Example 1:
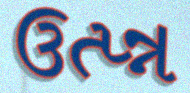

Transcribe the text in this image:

ઉત્પ્ન્ન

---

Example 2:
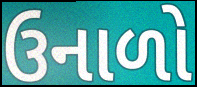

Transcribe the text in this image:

ઉનાળો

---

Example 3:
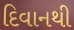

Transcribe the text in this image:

દિવાનથી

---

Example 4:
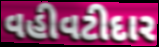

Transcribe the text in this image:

વહીવટીદાર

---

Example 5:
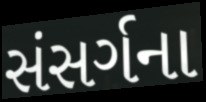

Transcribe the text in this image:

સંસર્ગના